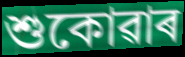
শুকোৱাৰ